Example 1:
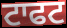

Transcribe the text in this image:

ਟਾਫਟ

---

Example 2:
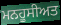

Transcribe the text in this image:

ਮਨਹੂਸੀਅਤ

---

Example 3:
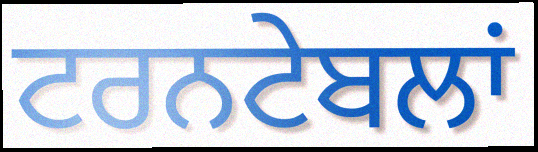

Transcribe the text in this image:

ਟਰਨਟੇਬਲਾਂ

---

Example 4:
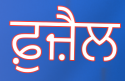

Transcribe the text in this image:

ਫ਼ੁਜ਼ੈਲ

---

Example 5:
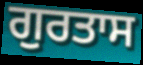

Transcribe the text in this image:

ਗੁਰਤਾਸ